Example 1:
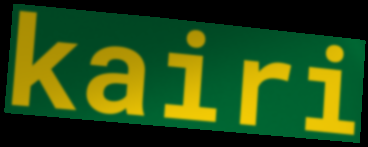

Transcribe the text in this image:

kairi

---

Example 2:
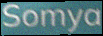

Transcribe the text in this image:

Somya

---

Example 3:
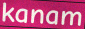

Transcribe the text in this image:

kanam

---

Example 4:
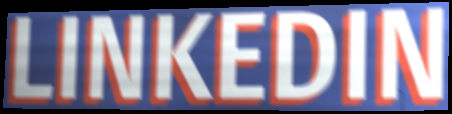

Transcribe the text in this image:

LINKEDIN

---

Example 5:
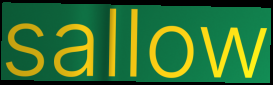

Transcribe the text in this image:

sallow